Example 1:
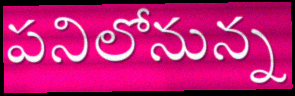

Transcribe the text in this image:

పనిలోనున్న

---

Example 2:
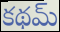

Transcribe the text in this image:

కథమ్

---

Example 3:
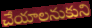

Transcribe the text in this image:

చేయాలనుకుని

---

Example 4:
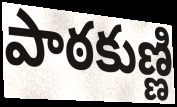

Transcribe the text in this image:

పాఠకుణ్ణి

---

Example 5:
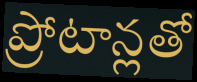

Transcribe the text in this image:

ప్రోటాన్లతో